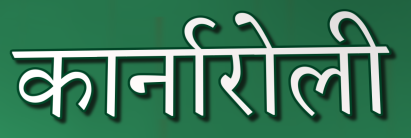
कार्नारोली